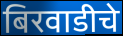
बिरवाडीचे